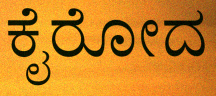
ಕೈರೋದ